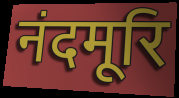
नंदमूरि